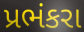
પ્રભંકરા